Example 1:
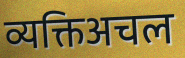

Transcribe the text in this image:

व्यक्तिअचल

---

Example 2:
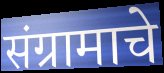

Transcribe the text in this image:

संग्रामाचे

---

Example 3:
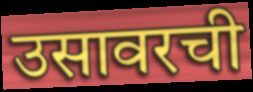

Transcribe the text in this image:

उसावरची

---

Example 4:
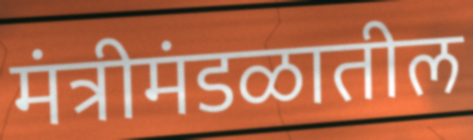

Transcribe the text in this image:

मंत्रीमंडळातील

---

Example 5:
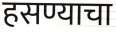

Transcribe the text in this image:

हसण्याचा